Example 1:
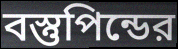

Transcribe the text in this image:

বস্তুপিন্ডের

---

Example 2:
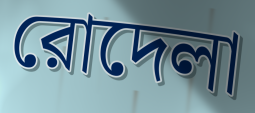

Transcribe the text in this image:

রোদেলা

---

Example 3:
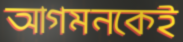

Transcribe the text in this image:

আগমনকেই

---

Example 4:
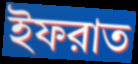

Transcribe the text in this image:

ইফরাত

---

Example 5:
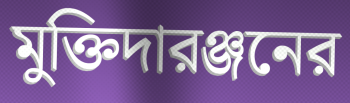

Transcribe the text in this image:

মুক্তিদারঞ্জনের